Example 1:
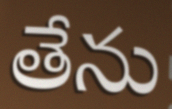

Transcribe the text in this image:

తేను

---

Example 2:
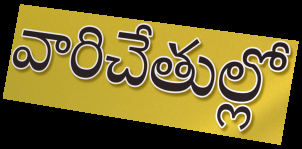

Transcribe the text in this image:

వారిచేతుల్లో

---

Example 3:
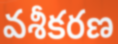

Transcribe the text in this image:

వశీకరణ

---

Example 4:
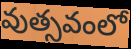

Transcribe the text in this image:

వుత్సవంలో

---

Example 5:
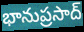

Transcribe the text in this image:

భానుప్రసాద్